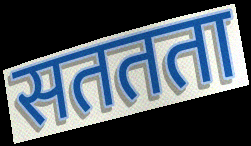
सततता